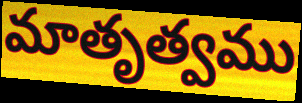
మాతృత్వము